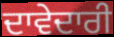
ਦਾਵੇਦਾਰੀ